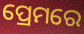
ପ୍ରେମରେ